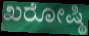
ಖರೋಷ್ಠಿ